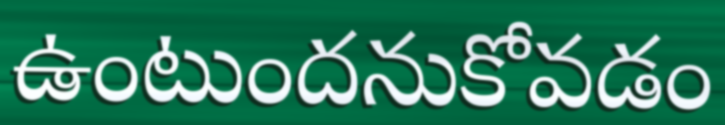
ఉంటుందనుకోవడం